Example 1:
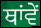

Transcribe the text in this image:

ਥਾਂਵੇਂ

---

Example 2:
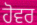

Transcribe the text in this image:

ਹੋਵਰ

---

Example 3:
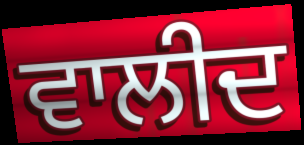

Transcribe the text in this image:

ਵਾਲੀਦ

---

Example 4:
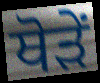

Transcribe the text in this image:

ਥੋੜੇਂ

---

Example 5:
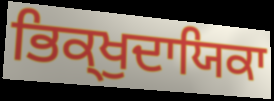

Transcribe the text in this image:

ਭਿਕ੍ਖੁਦਾਯਿਕਾ